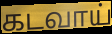
கடவாய்